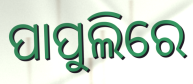
ପାପୁଲିରେ